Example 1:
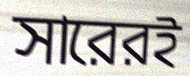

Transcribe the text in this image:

সারেরই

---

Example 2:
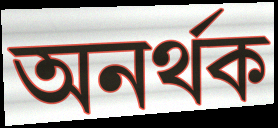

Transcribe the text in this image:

অনর্থক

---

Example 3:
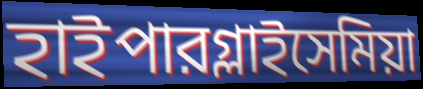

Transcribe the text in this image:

হাইপারগ্লাইসেমিয়া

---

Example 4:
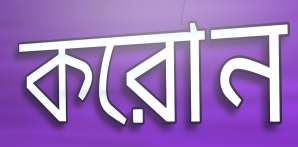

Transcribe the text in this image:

করোন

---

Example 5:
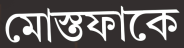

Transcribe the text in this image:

মোস্তফাকে